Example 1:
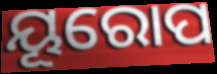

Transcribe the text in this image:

ୟୂରୋପ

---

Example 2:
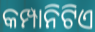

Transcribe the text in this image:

କମ୍ପାନିଟିଏ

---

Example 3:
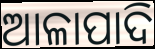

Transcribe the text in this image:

ଆଳାପାଦି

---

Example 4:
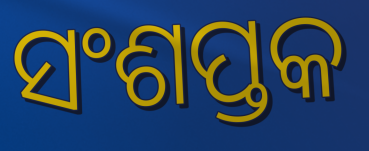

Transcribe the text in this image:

ସଂଶପ୍ତକ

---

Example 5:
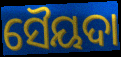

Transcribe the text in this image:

ସୈୟଦା